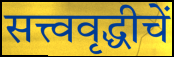
सत्त्ववृद्धीचें